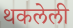
थकलेली